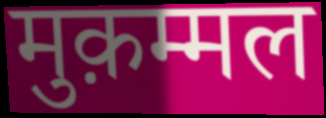
मुक़म्मल